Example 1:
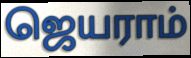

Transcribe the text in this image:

ஜெயராம்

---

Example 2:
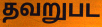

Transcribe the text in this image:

தவறுபட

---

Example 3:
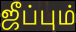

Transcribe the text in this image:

ஜீப்பும்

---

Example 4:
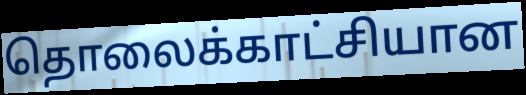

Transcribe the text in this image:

தொலைக்காட்சியான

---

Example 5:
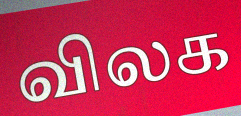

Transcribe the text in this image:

விலக